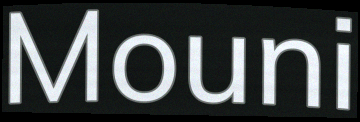
Mouni